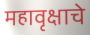
महावृक्षाचे